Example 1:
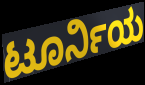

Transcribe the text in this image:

ಟೂರ್ನಿಯ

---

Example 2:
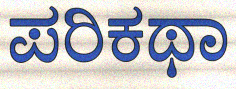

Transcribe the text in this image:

ಪರಿಕಥಾ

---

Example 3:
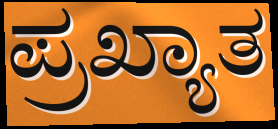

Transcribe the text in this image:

ಪ್ರಖ್ಯಾತ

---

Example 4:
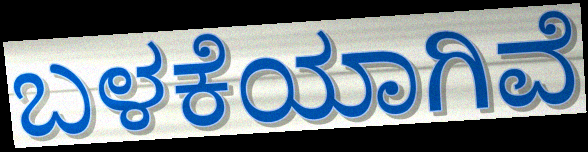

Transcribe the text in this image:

ಬಳಕೆಯಾಗಿವೆ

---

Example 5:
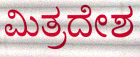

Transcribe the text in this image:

ಮಿತ್ರದೇಶ